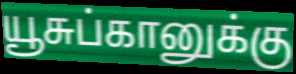
யூசுப்கானுக்கு